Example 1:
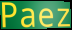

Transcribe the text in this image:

Paez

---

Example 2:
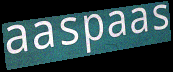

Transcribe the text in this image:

aaspaas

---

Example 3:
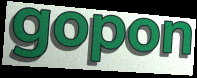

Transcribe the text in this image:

gopon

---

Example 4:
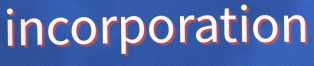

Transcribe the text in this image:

incorporation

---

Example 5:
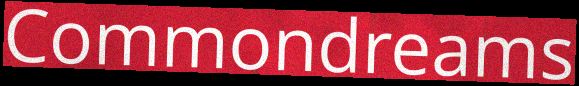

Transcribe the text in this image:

Commondreams